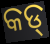
କଡ୍